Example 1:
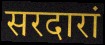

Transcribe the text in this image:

सरदारां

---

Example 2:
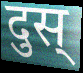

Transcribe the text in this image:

दुस्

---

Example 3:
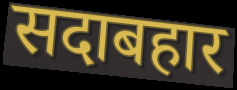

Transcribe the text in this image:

सदाबहार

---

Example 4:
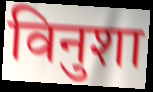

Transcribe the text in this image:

विनुशा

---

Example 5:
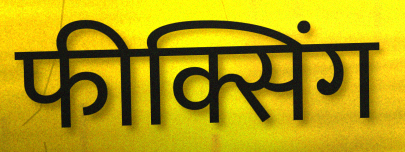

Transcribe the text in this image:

फीक्सिंग